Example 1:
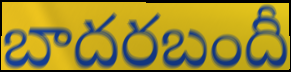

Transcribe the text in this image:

బాదరబందీ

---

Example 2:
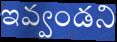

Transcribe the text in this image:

ఇవ్వండని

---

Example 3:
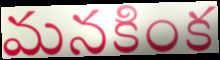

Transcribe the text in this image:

మనకింక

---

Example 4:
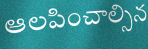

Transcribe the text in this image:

ఆలపించాల్సిన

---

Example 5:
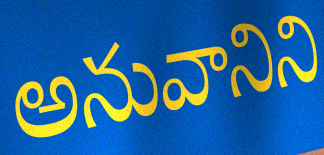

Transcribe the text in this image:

అనువానిని